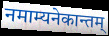
नमाम्यनेकान्तम्